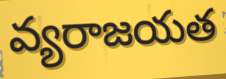
వ్యరాజయత